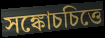
সঙ্কোচচিত্তে